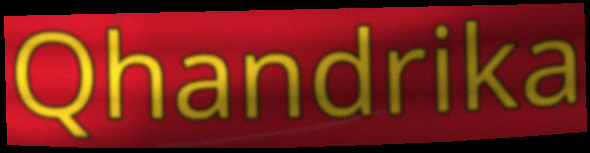
Qhandrika